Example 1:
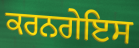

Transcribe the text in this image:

ਕਰਨਗੇਇਸ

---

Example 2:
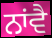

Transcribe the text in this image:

ਨਾਂਵੈ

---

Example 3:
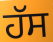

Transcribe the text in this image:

ਹੱਸ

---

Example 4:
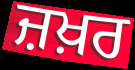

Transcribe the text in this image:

ਜ਼ਖ਼ਰ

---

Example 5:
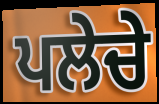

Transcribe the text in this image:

ਪਲੇਚੇ